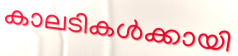
കാലടികൾക്കായി